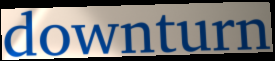
downturn